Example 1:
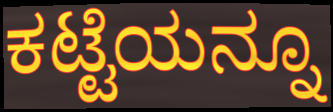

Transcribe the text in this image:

ಕಟ್ಟೆಯನ್ನೂ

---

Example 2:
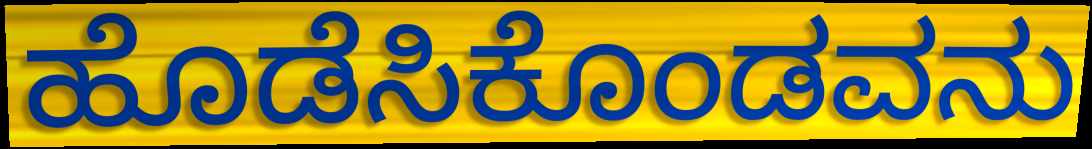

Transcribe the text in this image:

ಹೊಡೆಸಿಕೊಂಡವನು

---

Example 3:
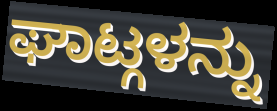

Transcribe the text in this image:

ಘಾಟ್ಗಳನ್ನು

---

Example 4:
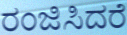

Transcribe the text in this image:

ರಂಜಿಸಿದರೆ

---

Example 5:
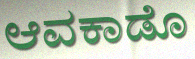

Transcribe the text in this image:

ಆವಕಾಡೊ